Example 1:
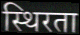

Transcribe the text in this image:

स्थिरता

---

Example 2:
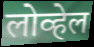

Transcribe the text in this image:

लोव्हेल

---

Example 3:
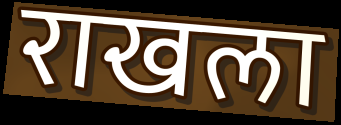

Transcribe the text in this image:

राखला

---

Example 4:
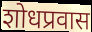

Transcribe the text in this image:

शोधप्रवास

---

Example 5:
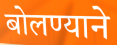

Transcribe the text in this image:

बोलण्याने